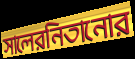
সালেরনিতানোর